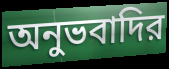
অনুভবাদির